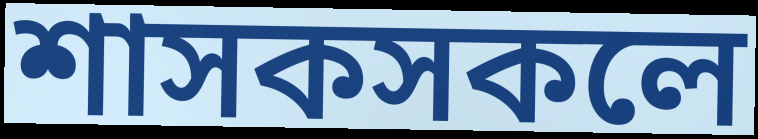
শাসকসকলে